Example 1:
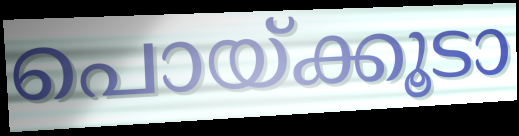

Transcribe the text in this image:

പൊയ്ക്കൂടാ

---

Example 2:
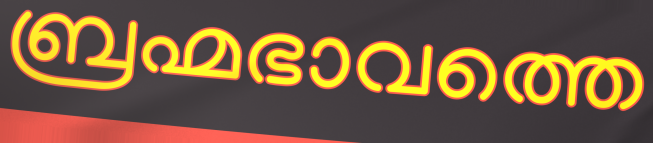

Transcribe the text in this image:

ബ്രഹ്മഭാവത്തെ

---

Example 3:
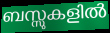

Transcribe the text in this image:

ബസ്സുകളിൽ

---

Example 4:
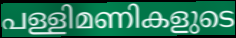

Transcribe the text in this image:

പള്ളിമണികളുടെ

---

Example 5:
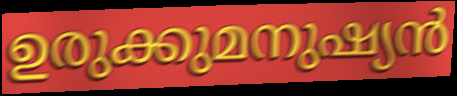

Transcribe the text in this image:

ഉരുക്കുമനുഷ്യൻ